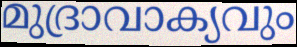
മുദ്രാവാക്യവും